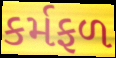
કર્મફળ